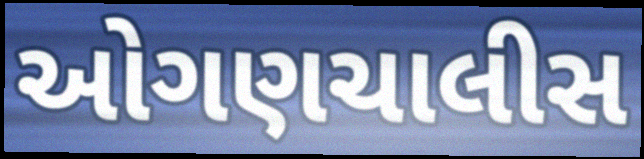
ઓગણચાલીસ